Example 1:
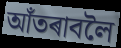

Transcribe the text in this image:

আঁতৰাবলৈ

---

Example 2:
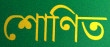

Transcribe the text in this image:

শোণিত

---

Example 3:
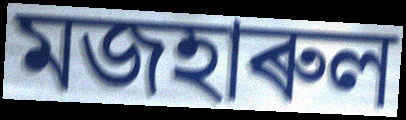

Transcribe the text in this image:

মজহাৰুল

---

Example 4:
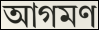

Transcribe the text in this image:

আগমণ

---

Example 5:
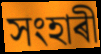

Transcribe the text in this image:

সংহাৰী